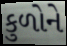
કુળોને